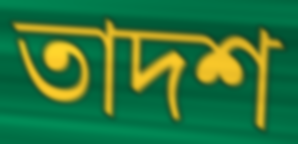
তাদশ